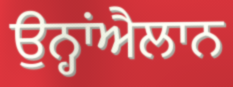
ਉਨ੍ਹਾਂਐਲਾਨ